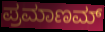
ಪ್ರಮಾಣಮ್